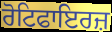
ਰੋਟਿਫਾਇਰਜ਼